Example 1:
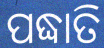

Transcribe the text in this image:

ପଦ୍ଧାତି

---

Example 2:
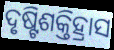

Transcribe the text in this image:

ଦୃଷ୍ଟିଶକ୍ତିହ୍ରାସ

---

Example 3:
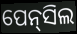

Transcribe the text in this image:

ପେନ୍‍ସିଲ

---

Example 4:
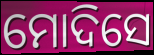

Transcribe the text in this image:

ମୋଦିସେ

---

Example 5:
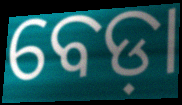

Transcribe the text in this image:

ବେଡ଼ା